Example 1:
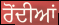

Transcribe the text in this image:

ਰੋਂਦੀਆਂ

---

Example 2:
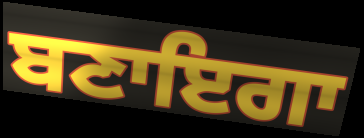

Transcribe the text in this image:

ਬਣਾਇਗਾ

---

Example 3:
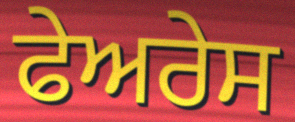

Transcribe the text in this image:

ਫੇਅਰੇਸ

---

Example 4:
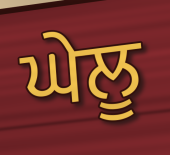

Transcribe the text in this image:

ਘੇਲੂ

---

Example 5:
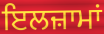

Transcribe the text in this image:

ਇਲਜ਼ਾਮਾਂ